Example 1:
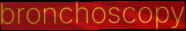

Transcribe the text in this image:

bronchoscopy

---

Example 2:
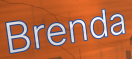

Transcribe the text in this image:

Brenda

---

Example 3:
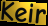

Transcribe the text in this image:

Keir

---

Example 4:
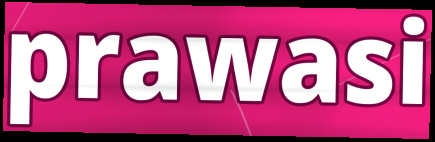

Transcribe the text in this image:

prawasi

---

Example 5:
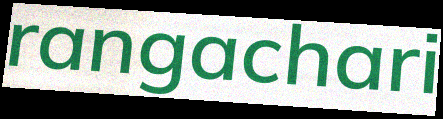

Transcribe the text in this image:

rangachari